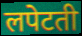
लपेटती